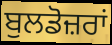
ਬੁਲਡੋਜ਼ਰਾਂ